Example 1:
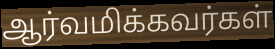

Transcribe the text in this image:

ஆர்வமிக்கவர்கள்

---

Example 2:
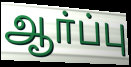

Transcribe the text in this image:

ஆர்ப்பு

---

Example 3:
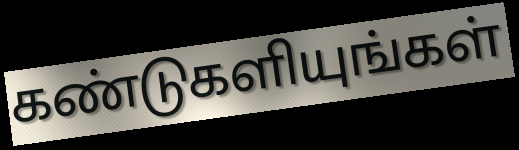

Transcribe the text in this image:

கண்டுகளியுங்கள்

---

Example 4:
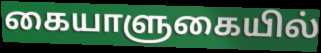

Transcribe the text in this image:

கையாளுகையில்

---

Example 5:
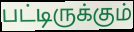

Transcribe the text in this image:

பட்டிருக்கும்